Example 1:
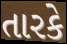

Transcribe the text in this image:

તારકે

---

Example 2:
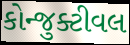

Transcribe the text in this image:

કોન્જુક્ટીવલ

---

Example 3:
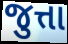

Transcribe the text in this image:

જુત્તા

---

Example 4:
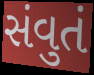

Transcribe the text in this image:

સંવુતં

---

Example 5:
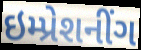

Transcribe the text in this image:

ઇમ્પ્રેશનીંગ